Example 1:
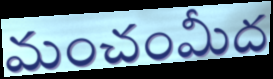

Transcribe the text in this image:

మంచంమీద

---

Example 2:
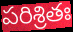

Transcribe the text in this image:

పరిశ్రితః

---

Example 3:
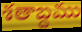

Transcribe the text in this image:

శతాబ్దము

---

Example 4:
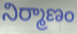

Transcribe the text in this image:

నిర్మాణం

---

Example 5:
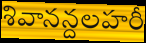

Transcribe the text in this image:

శివానన్దలహరీ